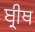
ਬ੍ਰੀਥ